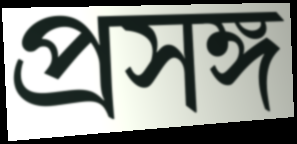
প্রসঙ্গ